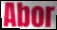
Abor